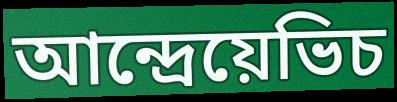
আন্দ্রেয়েভিচ